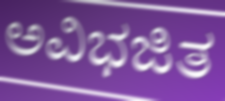
ಅವಿಭಜಿತ